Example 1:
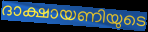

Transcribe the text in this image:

ദാക്ഷായണിയുടെ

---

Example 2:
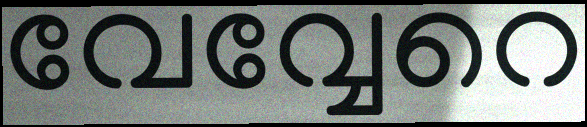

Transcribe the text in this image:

വേവ്വേറെ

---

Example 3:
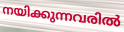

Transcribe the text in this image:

നയിക്കുന്നവരിൽ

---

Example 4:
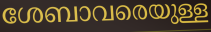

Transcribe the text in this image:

ശേബാവരെയുള്ള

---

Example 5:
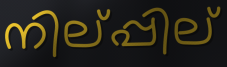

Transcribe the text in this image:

നില്പ്പില്